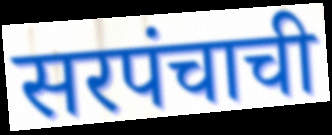
सरपंचाची